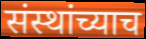
संस्थांच्याच